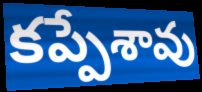
కప్పేశావు